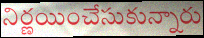
నిర్ణయించేసుకున్నారు